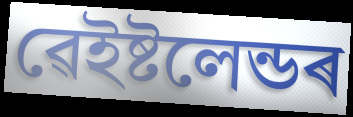
ৱেইষ্টলেন্ডৰ